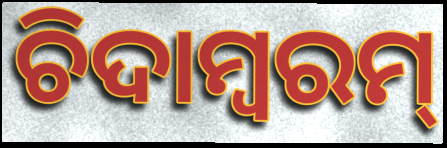
ଚିଦାମ୍ବରମ୍